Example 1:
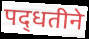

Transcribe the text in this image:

पद्‍धतीने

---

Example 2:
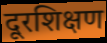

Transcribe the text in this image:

दूरशिक्षण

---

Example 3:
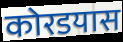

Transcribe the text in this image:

कोरडयास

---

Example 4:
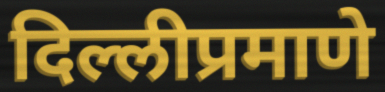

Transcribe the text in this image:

दिल्लीप्रमाणे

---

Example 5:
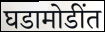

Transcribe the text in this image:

घडामोडींत